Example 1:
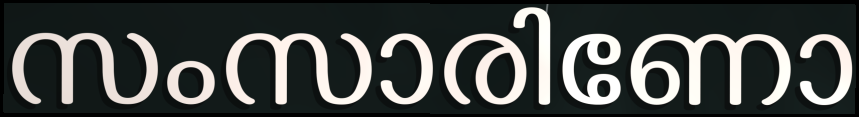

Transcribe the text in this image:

സംസാരിണോ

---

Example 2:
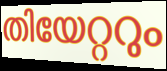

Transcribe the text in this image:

തിയേറ്ററും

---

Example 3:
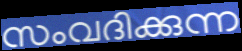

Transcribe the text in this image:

സംവദിക്കുന്ന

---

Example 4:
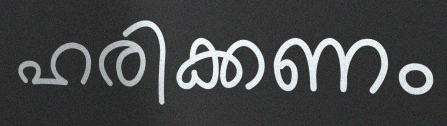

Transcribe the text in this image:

ഹരിക്കണം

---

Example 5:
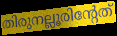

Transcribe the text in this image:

തിരുനല്ലൂരിന്റേത്